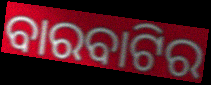
ବାରବାଟିର